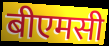
बीएमसी